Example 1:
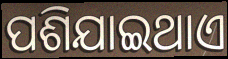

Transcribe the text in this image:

ପଶିଯାଇଥାଏ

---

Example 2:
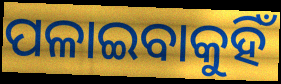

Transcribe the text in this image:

ପଳାଇବାକୁହିଁ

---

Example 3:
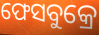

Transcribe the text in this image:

ଫେସବୁକ୍ରେ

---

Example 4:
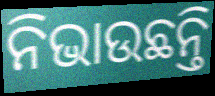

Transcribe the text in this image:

ନିଭାଉଛନ୍ତି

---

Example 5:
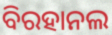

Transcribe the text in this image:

ବିରହାନଲ